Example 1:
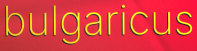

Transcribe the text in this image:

bulgaricus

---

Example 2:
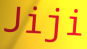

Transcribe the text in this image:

Jiji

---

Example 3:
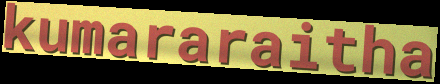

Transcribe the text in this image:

kumararaitha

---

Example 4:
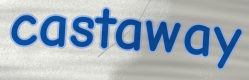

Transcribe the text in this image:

castaway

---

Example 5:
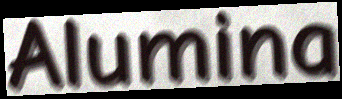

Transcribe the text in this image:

Alumina